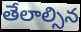
తేలాల్సిన